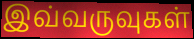
இவ்வருவுகள்